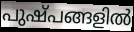
പുഷ്പങ്ങളിൽ